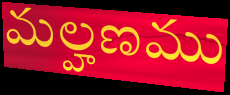
మల్హణము